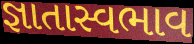
જ્ઞાતાસ્વભાવ